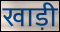
खाड़ी